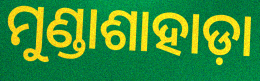
ମୁଣ୍ଡାଶାହାଡ଼ା